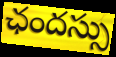
ఛందస్సు